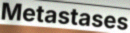
Metastases